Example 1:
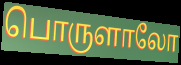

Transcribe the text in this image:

பொருளாலோ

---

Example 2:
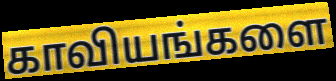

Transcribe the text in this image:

காவியங்களை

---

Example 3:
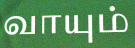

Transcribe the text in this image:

வாயும்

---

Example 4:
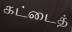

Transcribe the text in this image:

கட்டைத்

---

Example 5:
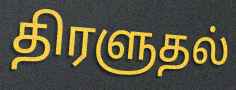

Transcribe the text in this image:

திரளுதல்